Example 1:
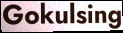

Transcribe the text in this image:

Gokulsing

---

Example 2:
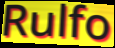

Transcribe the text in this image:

Rulfo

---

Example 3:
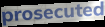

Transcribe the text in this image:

prosecuted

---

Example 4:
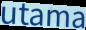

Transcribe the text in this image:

utama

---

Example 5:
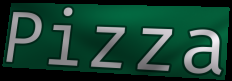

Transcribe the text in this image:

Pizza